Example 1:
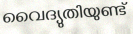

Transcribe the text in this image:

വൈദ്യുതിയുണ്ട്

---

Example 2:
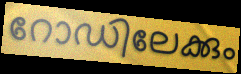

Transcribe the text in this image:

റോഡിലേക്കും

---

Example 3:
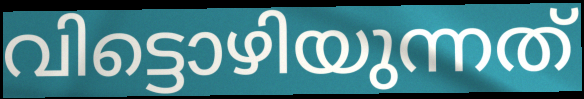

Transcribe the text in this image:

വിട്ടൊഴിയുന്നത്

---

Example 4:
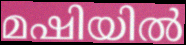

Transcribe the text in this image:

മഷിയിൽ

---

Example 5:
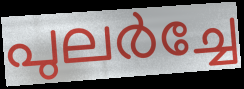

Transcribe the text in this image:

പുലർച്ചേ